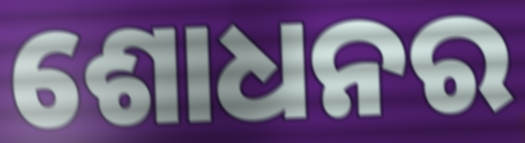
ଶୋଧନର